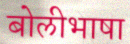
बोलीभाषा